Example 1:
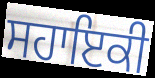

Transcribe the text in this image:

ਸਹਾਇਕੀ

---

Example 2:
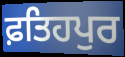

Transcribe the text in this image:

ਫ਼ਤਿਹਪੁਰ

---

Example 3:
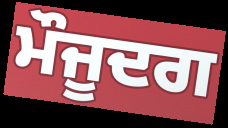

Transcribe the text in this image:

ਮੌਜੂਦਗ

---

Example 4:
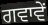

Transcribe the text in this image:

ਗਵਾਵੇਂ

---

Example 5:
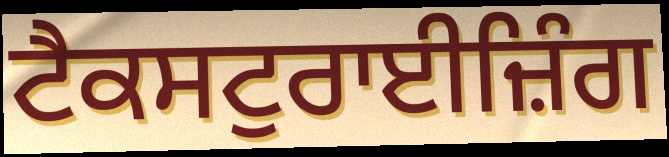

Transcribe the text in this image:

ਟੈਕਸਟੁਰਾਈਜ਼ਿੰਗ